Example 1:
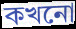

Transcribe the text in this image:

কখনো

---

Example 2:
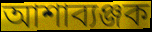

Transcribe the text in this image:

আশাব্যঞ্জক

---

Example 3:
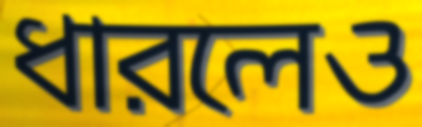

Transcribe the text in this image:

ধারলেও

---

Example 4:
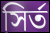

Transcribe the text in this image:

সির্ত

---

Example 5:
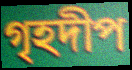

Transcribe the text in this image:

গৃহদীপ